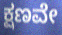
ಕ್ಷಣವೇ